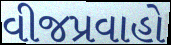
વીજપ્રવાહો